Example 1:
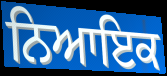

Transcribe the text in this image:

ਨਿਆਇਕ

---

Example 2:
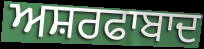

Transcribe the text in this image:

ਅਸ਼ਰਫਾਬਾਦ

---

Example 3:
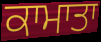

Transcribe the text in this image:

ਕਾਮਾਤਾ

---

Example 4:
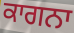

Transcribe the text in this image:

ਕਾਗਨਾ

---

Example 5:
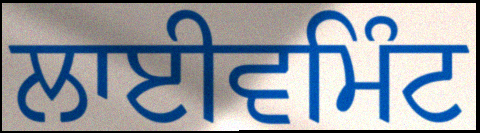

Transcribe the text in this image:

ਲਾਈਵਮਿੰਟ